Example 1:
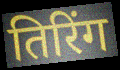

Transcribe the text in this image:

तिरिंग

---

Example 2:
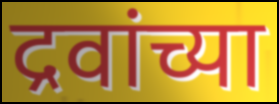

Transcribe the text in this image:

द्रवांच्या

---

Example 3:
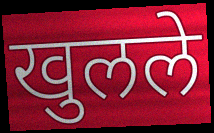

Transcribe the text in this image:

खुलले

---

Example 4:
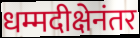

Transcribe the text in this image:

धम्मदीक्षेनंतर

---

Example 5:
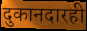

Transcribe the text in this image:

दुकानदारही